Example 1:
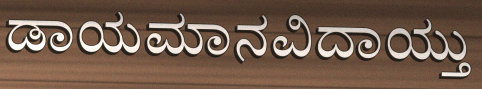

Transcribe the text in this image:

ಡಾಯಮಾನವಿದಾಯ್ತು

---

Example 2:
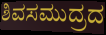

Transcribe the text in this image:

ಶಿವಸಮುದ್ರದ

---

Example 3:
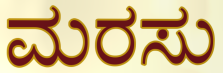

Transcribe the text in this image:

ಮರಸು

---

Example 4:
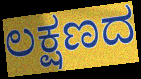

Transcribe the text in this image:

ಲಕ್ಷಣದ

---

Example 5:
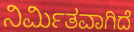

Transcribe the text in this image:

ನಿರ್ಮಿತವಾಗಿದೆ